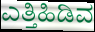
ಎತ್ತಿಹಿಡಿವ